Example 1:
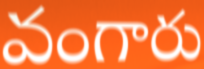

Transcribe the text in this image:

వంగారు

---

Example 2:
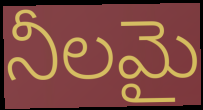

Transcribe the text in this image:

నీలమై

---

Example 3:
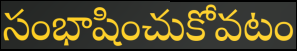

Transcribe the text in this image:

సంభాషించుకోవటం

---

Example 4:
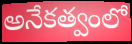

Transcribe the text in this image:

అనేకత్వంలో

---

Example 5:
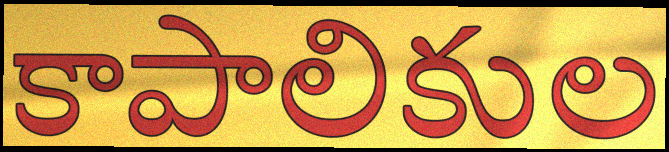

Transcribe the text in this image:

కాపాలికుల